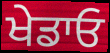
ਖੇਡਾਓ